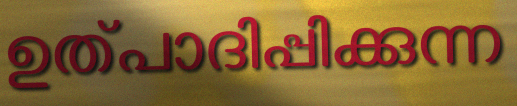
ഉത്പാദിപ്പിക്കുന്ന